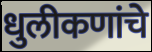
धुलीकणांचे